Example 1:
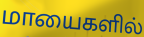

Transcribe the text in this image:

மாயைகளில்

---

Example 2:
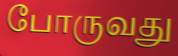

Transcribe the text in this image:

போருவது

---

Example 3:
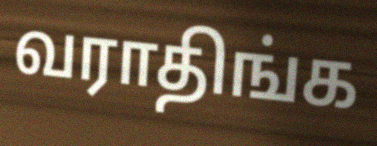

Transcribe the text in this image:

வராதிங்க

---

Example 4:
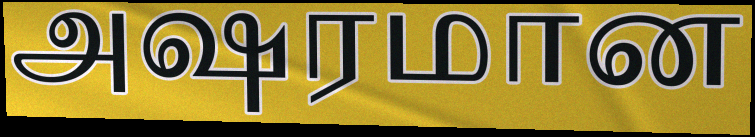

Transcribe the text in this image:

அஷரமான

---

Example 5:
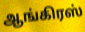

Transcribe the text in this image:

ஆங்கிரஸ்